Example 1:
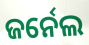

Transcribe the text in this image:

ଜର୍ନେଲ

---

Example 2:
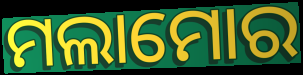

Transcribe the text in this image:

ମଲାମୋର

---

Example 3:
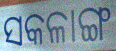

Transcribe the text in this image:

ସକଳାଙ୍ଗ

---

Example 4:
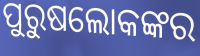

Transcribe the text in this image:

ପୁରୁଷଲୋକଙ୍କର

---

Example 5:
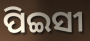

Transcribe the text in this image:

ପିଇସୀ